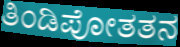
ತಿಂಡಿಪೋತತನ